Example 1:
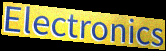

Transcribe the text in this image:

Electronics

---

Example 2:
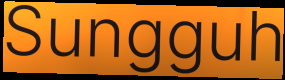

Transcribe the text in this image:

Sungguh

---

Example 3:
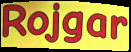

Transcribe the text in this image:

Rojgar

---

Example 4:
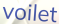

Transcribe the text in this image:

voilet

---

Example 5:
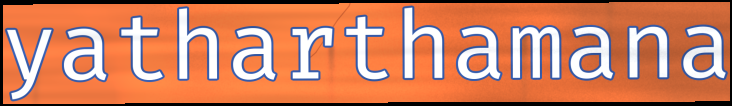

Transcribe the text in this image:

yatharthamana